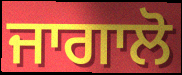
ਜਾਗਾਲੋ